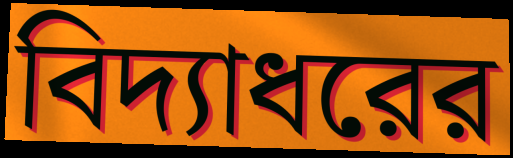
বিদ্যাধরের